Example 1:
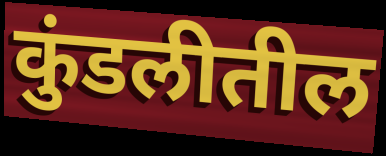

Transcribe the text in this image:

कुंडलीतील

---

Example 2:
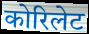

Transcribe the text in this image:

कोरिलेट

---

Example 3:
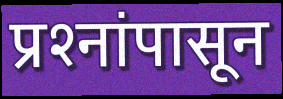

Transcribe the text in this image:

प्रश्नांपासून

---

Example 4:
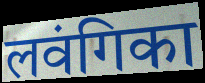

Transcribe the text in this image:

लवंगिका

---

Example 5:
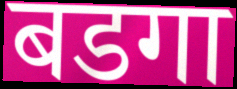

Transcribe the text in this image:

बडगा